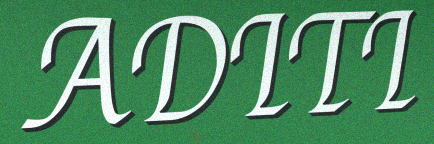
ADITI